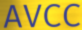
AVCC